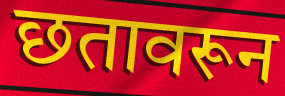
छतावरून